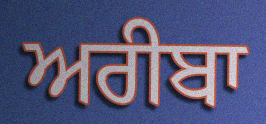
ਅਰੀਬਾ